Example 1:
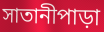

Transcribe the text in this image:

সাতানীপাড়া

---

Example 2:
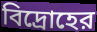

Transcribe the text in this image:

বিদ্রোহের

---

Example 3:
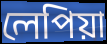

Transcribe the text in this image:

লেপিয়া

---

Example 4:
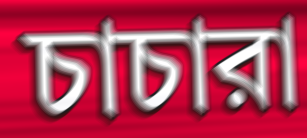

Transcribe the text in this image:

চাচারা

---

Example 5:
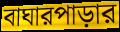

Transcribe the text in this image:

বাঘারপাড়ার